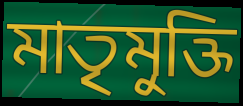
মাতৃমুক্তি